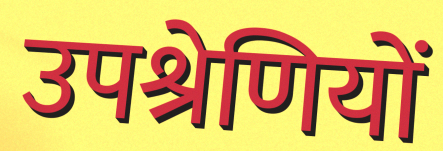
उपश्रेणियों